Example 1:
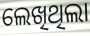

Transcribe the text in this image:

ଲେଖିଥିଲା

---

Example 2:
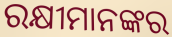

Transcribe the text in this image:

ରକ୍ଷୀମାନଙ୍କର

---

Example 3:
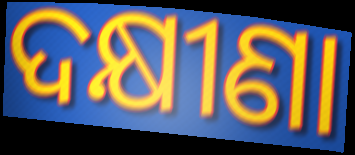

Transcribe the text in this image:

ଦକ୍ଷୀଣା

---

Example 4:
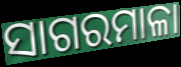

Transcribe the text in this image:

ସାଗରମାଳା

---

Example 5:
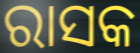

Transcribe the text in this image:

ରାସକ